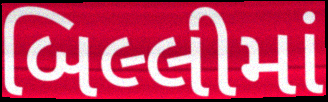
બિલ્લીમાં